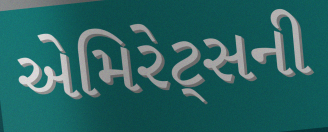
એમિરેટ્સની